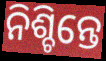
ନିଶ୍ଚିନ୍ତେ